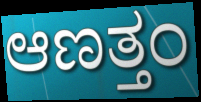
ಆಣತ್ತಂ